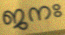
ജനഃ